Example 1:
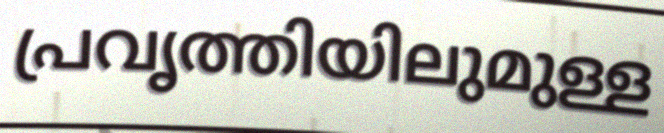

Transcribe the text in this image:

പ്രവൃത്തിയിലുമുള്ള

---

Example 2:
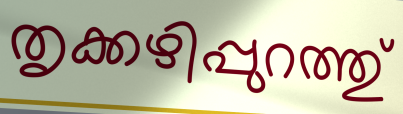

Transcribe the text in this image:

തൃക്കഴിപ്പുറത്തു്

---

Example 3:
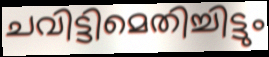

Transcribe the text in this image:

ചവിട്ടിമെതിച്ചിട്ടും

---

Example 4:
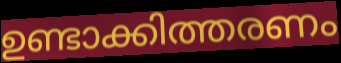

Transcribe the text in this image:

ഉണ്ടാക്കിത്തരണം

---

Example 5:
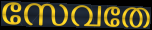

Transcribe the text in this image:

സേവതേ